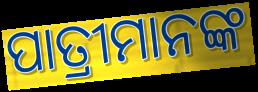
ପାତ୍ରୀମାନଙ୍କ